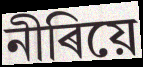
নীৰিয়ে